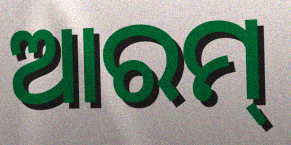
ଆରମ୍